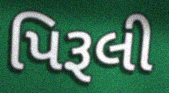
પિરૂલી